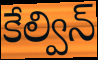
కేల్విన్